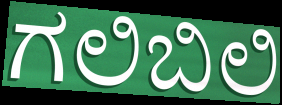
ಗಲಿಬಿಲಿ